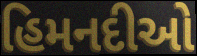
હિમનદીઓ